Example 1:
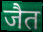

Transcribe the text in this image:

जैत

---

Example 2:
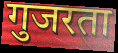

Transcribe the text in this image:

गुजरता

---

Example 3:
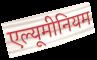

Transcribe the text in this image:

एल्यूमीनियम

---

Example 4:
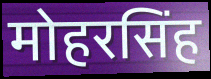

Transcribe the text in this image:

मोहरसिंह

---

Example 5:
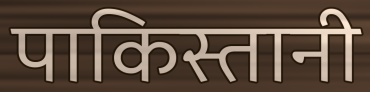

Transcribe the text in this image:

पाकिस्तानी